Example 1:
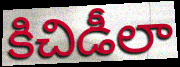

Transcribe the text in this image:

కిచిడీలా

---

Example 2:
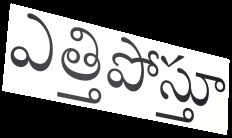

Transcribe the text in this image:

ఎత్తిపోస్తూ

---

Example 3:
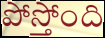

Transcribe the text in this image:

పోస్తోంది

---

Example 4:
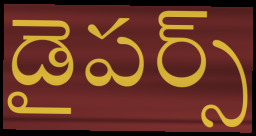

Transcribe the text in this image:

డైపర్స్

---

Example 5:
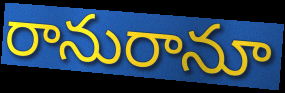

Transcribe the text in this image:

రానురానూ